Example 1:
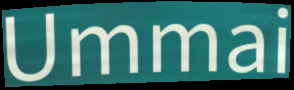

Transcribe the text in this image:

Ummai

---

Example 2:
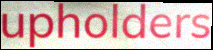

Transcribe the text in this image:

upholders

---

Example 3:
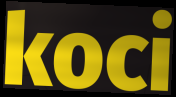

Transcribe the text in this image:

koci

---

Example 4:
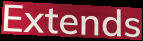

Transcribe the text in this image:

Extends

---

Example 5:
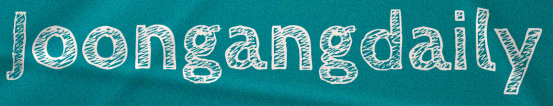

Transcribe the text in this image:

Joongangdaily